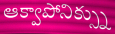
ఆక్వాపోనిక్స్ను